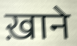
ख़ाने